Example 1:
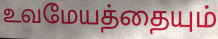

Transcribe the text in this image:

உவமேயத்தையும்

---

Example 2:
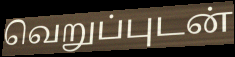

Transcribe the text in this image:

வெறுப்புடன்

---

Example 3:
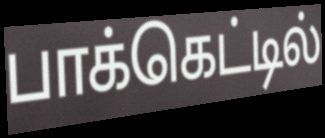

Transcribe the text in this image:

பாக்கெட்டில்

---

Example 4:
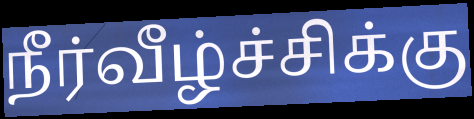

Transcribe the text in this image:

நீர்வீழ்ச்சிக்கு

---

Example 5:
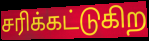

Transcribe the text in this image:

சரிக்கட்டுகிற